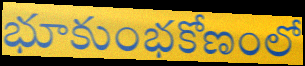
భూకుంభకోణంలో